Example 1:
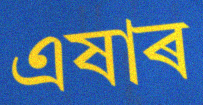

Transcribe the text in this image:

এষাৰ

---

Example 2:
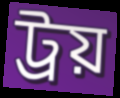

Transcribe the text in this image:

ট্ৰয়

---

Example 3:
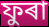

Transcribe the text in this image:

ফুৰা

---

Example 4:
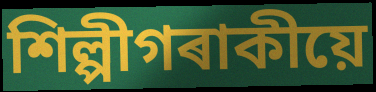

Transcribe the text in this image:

শিল্পীগৰাকীয়ে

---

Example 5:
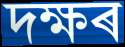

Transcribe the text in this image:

দক্ষৰ